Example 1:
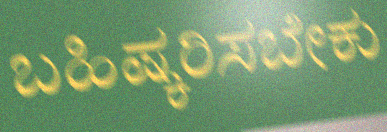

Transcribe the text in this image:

ಬಹಿಷ್ಕರಿಸಬೇಕು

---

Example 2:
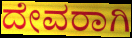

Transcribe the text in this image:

ದೇವರಾಗಿ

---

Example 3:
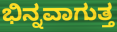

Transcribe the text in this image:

ಭಿನ್ನವಾಗುತ್ತ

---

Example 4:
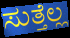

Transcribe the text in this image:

ಸುತ್ತೆಲ್ಲ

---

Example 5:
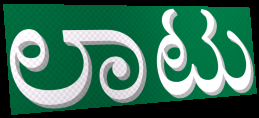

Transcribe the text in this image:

ಲಾಟು